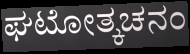
ಘಟೋತ್ಕಚನಂ